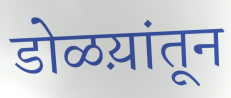
डोळय़ांतून